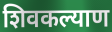
शिवकल्याण